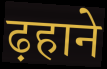
ढ़हाने